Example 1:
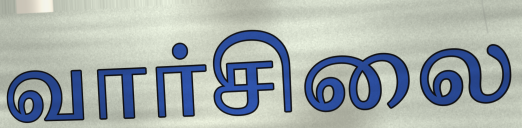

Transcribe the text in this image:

வார்சிலை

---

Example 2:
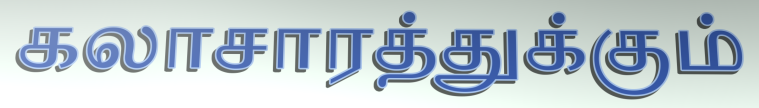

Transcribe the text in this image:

கலாசாரத்துக்கும்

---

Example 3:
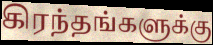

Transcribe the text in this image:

கிரந்தங்களுக்கு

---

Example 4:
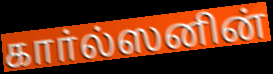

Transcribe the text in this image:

கார்ல்ஸனின்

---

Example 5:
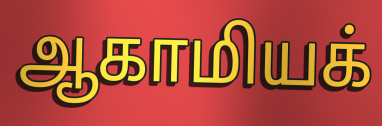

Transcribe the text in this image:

ஆகாமியக்